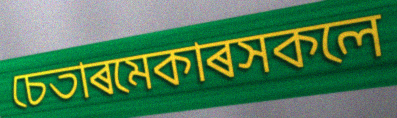
চেতাৰমেকাৰসকলে